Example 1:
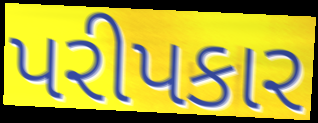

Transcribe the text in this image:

પરીપકાર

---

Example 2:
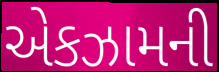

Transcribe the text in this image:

એકઝામની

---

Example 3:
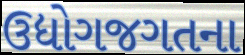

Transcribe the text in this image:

ઉદ્યોગજગતના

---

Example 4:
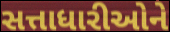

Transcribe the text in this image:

સત્તાધારીઓને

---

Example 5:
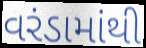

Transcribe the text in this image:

વરંડામાંથી